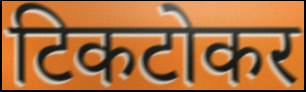
टिकटोकर